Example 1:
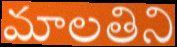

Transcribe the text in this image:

మాలతిని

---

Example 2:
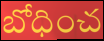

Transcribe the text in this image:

బోధించ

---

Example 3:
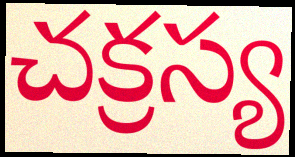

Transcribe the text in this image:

చక్రస్య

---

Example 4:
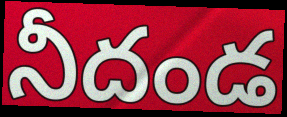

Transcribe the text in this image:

నీదండ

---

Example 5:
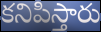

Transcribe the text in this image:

కనిపిస్తారు